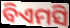
ବିଏମସି